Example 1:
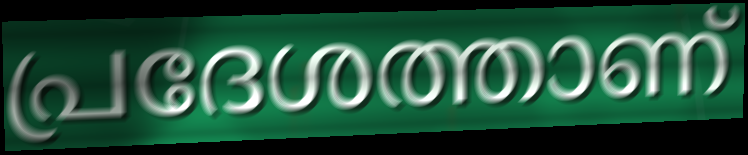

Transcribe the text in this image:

പ്രദേശത്താണ്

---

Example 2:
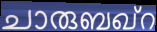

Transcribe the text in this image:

ചാരുബഖ്റ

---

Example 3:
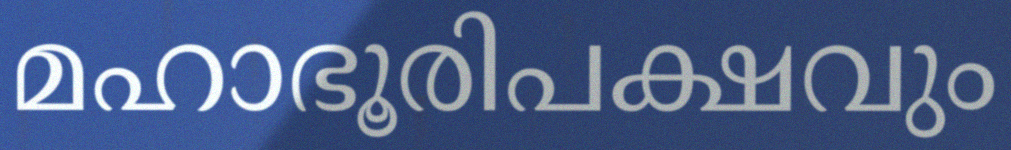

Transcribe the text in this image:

മഹാഭൂരിപക്ഷവും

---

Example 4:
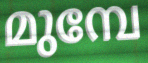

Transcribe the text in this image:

മുമ്പേ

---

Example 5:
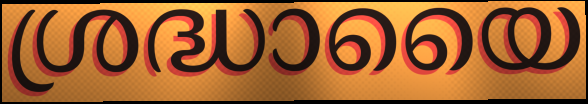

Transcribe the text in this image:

ശ്രദ്ധായൈ